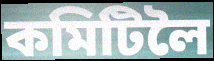
কমিটিলৈ